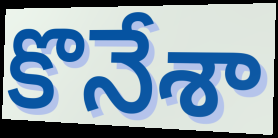
కొనేశా